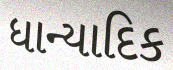
ધાન્યાદિક